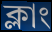
ক্লাং